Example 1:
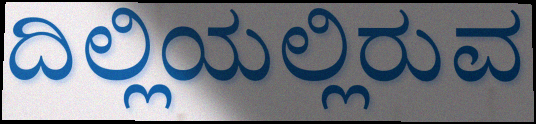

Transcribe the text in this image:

ದಿಲ್ಲಿಯಲ್ಲಿರುವ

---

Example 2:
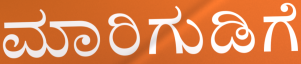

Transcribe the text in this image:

ಮಾರಿಗುಡಿಗೆ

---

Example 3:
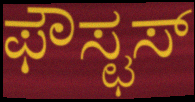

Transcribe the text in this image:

ಫೌಸ್ಟಸ್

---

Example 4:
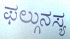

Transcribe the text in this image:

ಫಲ್ಗುನಸ್ಯ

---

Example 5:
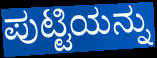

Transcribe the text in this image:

ಪುಟ್ಟಿಯನ್ನು